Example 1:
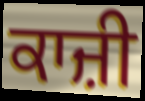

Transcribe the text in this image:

ਕਾਜ਼ੀ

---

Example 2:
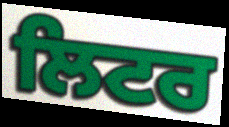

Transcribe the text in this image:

ਲਿਟਰ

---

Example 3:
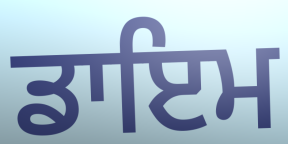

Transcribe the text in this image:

ਡਾਇਮ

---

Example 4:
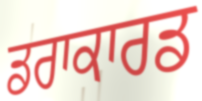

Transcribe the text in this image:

ਡਰਾਕਾਰਡ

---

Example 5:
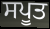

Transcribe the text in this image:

ਸਪੂਤ